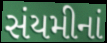
સંયમીનાં